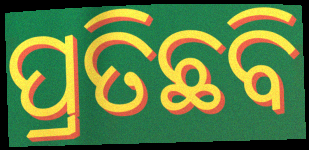
ପ୍ରତିଛବି